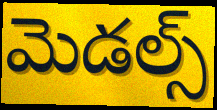
మెడల్స్